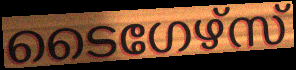
ടൈഗേഴ്സ്